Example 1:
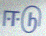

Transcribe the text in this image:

ஈடு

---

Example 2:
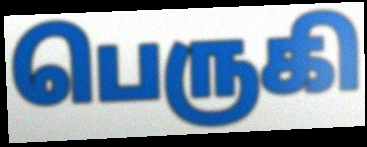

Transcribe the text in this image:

பெருகி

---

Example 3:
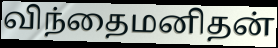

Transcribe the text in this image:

விந்தைமனிதன்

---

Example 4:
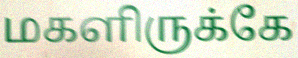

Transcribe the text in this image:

மகளிருக்கே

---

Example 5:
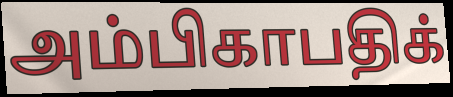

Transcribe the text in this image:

அம்பிகாபதிக்